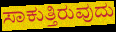
ಸಾಕುತ್ತಿರುವುದು